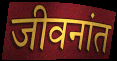
जीवनांत